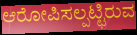
ಆರೋಪಿಸಲ್ಪಟ್ಟಿರುವ